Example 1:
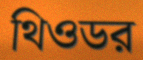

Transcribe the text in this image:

থিওডর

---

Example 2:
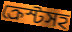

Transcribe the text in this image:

ক্রেস্টসহ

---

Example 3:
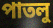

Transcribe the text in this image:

পাতলু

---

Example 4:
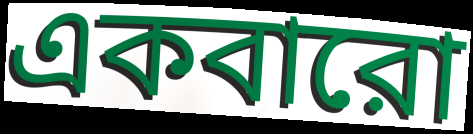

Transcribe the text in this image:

একবারো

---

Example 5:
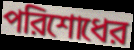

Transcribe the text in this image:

পরিশোধের